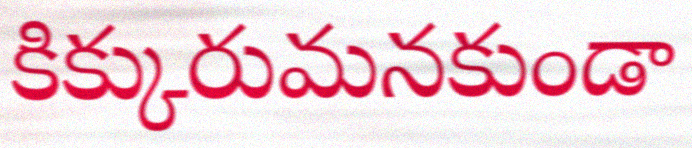
కిక్కురుమనకుండా